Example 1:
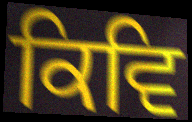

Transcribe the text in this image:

ਕਿਵਿ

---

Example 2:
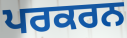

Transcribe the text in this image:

ਪਰਕਰਨ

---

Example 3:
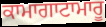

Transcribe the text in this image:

ਕਾਮਾਗਾਟਾਮਾਰੂ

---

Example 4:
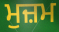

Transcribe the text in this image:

ਮੁਜ਼ਮ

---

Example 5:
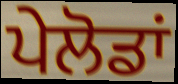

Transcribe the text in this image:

ਪੇਲੋਡਾਂ